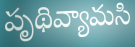
పృథివ్యామసి